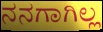
ನನಗಾಗಿಲ್ಲ